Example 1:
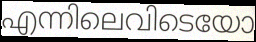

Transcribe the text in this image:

എന്നിലെവിടെയോ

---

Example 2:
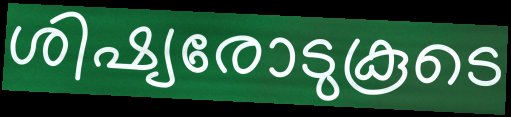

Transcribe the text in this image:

ശിഷ്യരോടുകൂടെ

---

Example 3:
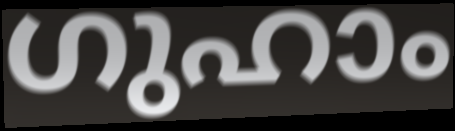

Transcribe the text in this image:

ഗുഹാം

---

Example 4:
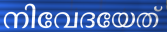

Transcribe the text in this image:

നിവേദയേത്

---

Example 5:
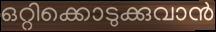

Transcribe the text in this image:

ഒറ്റിക്കൊടുക്കുവാൻ